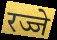
रज्जे